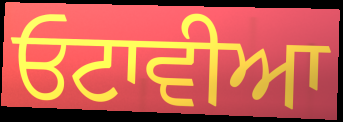
ਓਟਾਵੀਆ